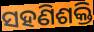
ସହଣିଶକ୍ତି